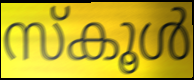
സ്കൂൾ